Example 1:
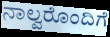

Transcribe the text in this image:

ನಾಲ್ವರೊಂದಿಗೆ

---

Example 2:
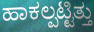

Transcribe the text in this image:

ಹಾಕಲ್ಪಟ್ಟಿತ್ತು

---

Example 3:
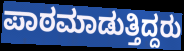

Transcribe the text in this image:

ಪಾಠಮಾಡುತ್ತಿದ್ದರು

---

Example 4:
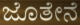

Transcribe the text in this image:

ಜೊತೇನೆ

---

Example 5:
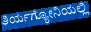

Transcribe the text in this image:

ತಿರ್ಯಗ್ಯೋನಿಯಲ್ಲಿ